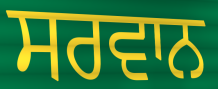
ਸਰਵਾਨ